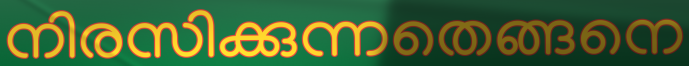
നിരസിക്കുന്നതെങ്ങനെ